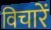
विचारें